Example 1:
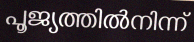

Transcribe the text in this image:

പൂജ്യത്തിൽനിന്ന്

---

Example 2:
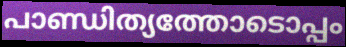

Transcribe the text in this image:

പാണ്ഡിത്യത്തോടൊപ്പം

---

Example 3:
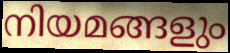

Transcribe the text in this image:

നിയമങ്ങളും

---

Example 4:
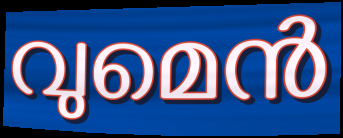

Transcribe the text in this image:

വുമെൻ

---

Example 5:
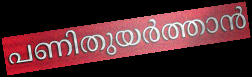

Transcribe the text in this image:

പണിതുയർത്താൻ